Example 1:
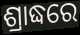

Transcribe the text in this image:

ଶ୍ରାଦ୍ଧରେ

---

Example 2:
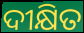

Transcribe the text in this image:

ଦୀକ୍ଷିତ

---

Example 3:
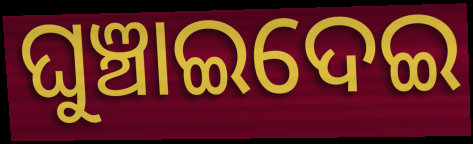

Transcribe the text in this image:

ଘୁଞ୍ଚାଇଦେଇ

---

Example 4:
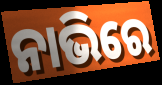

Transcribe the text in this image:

ନାଭିରେ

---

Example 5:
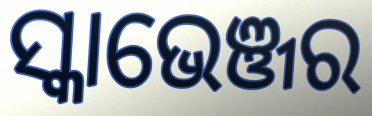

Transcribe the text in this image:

ସ୍କାଭେଞ୍ଜର